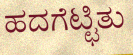
ಹದಗೆಟ್ಟಿತು